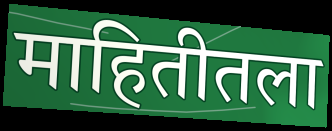
माहितीतला